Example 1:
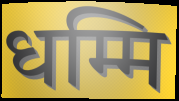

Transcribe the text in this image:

धम्मि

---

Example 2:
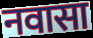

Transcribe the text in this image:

नवासा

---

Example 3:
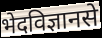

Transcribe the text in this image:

भेदविज्ञानसे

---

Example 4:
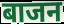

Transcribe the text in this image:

बाजन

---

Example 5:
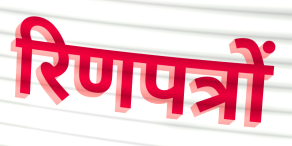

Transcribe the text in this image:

रिणपत्रों